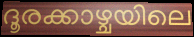
ദൂരക്കാഴ്ചയിലെ